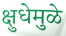
क्षुधेमुळे